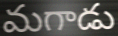
మగాడు